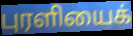
புரளியைக்